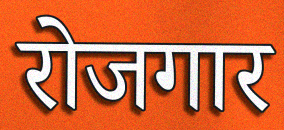
रोजगार